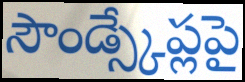
సౌండ్స్కేప్లపై